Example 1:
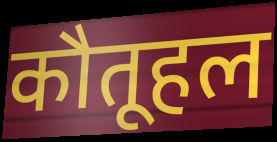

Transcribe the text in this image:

कौतूहल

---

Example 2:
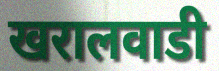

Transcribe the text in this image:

खरालवाडी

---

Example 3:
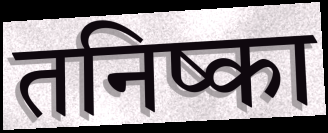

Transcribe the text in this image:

तनिष्का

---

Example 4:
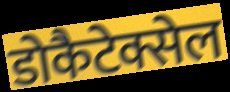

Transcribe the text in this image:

डोकैटेक्सेल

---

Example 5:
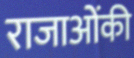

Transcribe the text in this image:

राजाओंकी